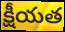
క్షీయత